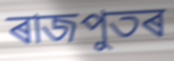
ৰাজপুতৰ